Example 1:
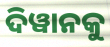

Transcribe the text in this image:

ଦିୱାନକୁ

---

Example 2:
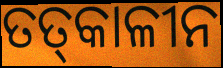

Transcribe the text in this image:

ତତ୍‍କାଳୀନ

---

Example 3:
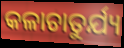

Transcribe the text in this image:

କଳାଚାତୁର୍ଯ୍ୟ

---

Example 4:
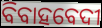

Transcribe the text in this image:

ବିବାହବେଦୀ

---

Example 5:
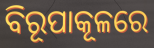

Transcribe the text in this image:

ବିରୂପାକୂଳରେ